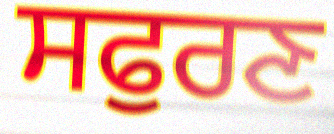
ਸਫੁਰਣ